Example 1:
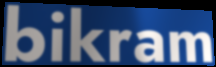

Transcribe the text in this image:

bikram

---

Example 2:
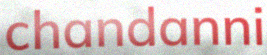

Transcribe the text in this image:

chandanni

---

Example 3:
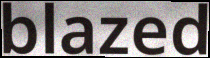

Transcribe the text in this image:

blazed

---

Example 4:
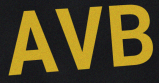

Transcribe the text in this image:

AVB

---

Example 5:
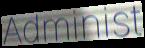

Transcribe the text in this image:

Administ